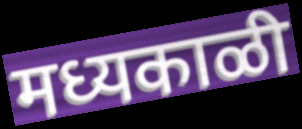
मध्यकाळी